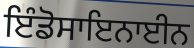
ਇੰਡੋਸਾਇਨਾਈਨ